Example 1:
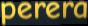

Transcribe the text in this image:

perera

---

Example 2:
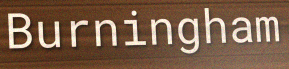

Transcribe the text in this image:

Burningham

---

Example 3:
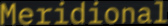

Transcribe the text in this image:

Meridional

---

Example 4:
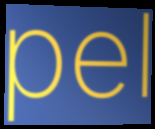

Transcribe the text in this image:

pel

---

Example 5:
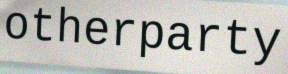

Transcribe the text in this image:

otherparty